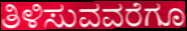
ತಿಳಿಸುವವರೆಗೂ